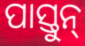
ପାସ୍ତୁନ୍